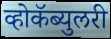
व्होकॅब्युलरी